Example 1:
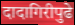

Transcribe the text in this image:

दादागिरीपुढे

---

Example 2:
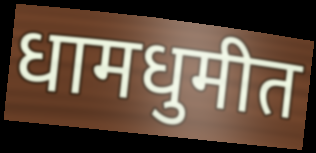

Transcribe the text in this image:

धामधुमीत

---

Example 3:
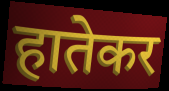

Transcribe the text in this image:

हातेकर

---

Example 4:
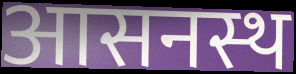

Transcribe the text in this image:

आसनस्थ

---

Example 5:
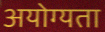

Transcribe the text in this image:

अयोग्यता